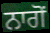
ਨਾਗੋਂ